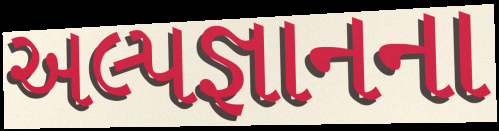
અલ્પજ્ઞાનના